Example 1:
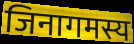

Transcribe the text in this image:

जिनागमस्य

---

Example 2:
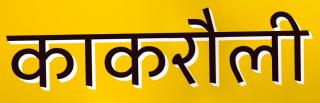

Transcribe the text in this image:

काकरौली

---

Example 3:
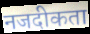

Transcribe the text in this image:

नजदीकता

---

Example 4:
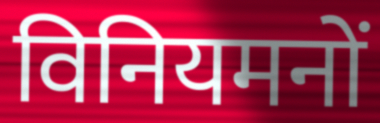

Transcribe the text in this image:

विनियमनों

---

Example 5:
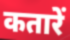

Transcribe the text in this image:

कतारें